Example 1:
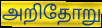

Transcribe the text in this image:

அறிதோறு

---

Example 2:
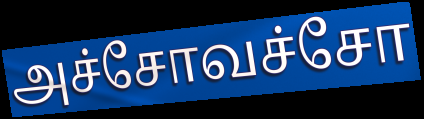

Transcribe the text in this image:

அச்சோவச்சோ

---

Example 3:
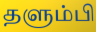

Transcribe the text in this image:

தளும்பி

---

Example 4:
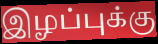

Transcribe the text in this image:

இழப்புக்கு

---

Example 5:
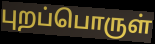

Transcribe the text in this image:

புறப்பொருள்